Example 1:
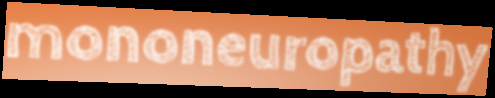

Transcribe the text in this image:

mononeuropathy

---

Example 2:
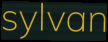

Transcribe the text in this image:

sylvan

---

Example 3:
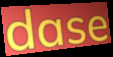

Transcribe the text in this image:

dase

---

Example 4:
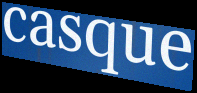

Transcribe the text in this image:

casque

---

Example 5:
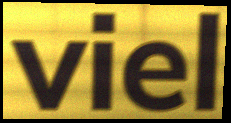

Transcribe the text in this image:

viel